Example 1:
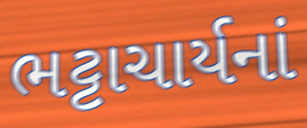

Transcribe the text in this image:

ભટ્ટાચાર્યનાં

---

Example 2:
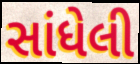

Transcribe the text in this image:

સાંધેલી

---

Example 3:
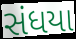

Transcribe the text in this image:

સંધયા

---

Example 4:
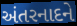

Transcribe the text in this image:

અંતરનાદને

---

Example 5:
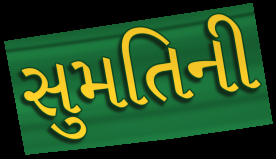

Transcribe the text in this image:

સુમતિની